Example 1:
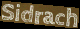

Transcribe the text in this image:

Sidrach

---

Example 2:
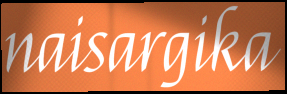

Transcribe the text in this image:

naisargika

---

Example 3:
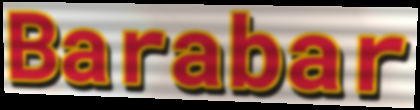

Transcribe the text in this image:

Barabar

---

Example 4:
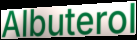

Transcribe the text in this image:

Albuterol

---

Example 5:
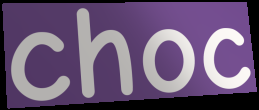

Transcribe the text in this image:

choc